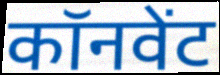
कॉनवेंट